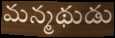
మన్మథుడు